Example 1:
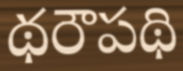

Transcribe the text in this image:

థరౌపథి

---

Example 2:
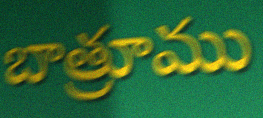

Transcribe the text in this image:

బాత్రూము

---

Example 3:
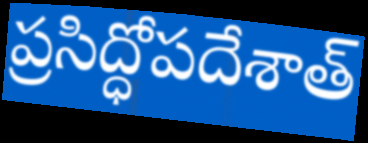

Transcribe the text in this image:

ప్రసిద్ధోపదేశాత్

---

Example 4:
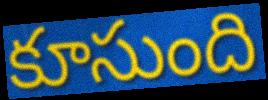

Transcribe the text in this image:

కూసుంది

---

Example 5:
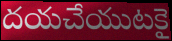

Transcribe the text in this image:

దయచేయుటకై